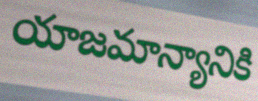
యాజమాన్యానికి